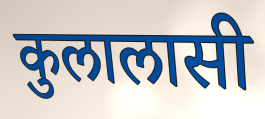
कुलालासी